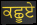
ਕਛੂਏ